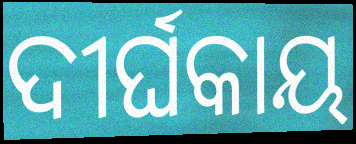
ଦୀର୍ଘକାୟ